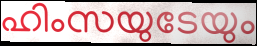
ഹിംസയുടേയും